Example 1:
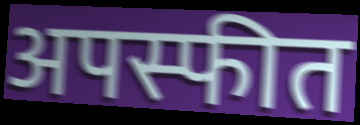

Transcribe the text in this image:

अपस्फीत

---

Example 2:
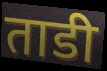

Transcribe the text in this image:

ताडी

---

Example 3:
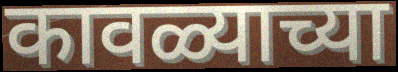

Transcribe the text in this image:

कावळ्याच्या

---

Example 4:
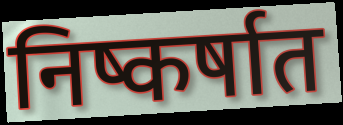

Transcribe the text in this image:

निष्कर्षात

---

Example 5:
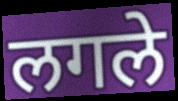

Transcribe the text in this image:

लगले